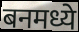
बनमध्ये